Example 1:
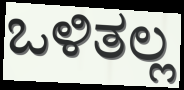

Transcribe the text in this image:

ಒಳಿತಲ್ಲ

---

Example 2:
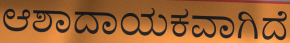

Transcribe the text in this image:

ಆಶಾದಾಯಕವಾಗಿದೆ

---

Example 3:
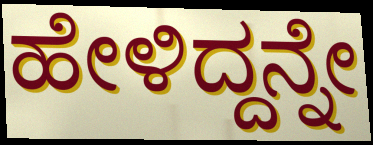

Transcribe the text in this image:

ಹೇಳಿದ್ದನ್ನೇ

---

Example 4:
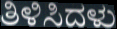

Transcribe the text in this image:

ತಿಳಿಸಿದಳು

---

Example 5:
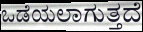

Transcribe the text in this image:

ಒಡೆಯಲಾಗುತ್ತದೆ